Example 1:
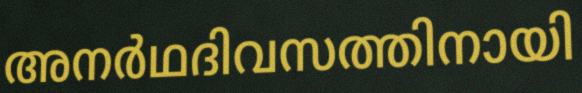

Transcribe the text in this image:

അനർഥദിവസത്തിനായി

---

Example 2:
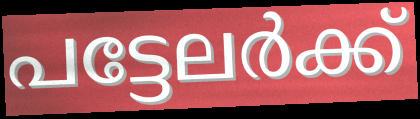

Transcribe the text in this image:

പട്ടേലർക്ക്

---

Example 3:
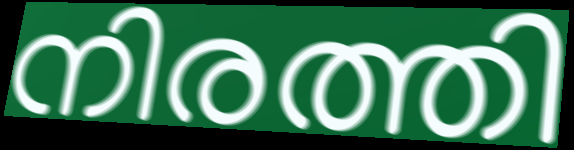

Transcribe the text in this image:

നിരത്തി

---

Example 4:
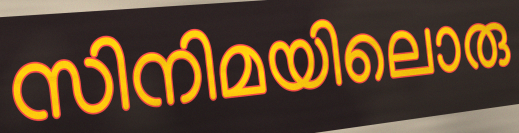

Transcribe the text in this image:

സിനിമയിലൊരു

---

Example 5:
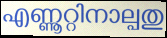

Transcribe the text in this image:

എണ്ണൂറ്റിനാല്പതു